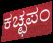
ಕಚ್ಛಪಂ